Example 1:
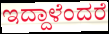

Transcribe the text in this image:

ಇದ್ದಾಳೆಂದರೆ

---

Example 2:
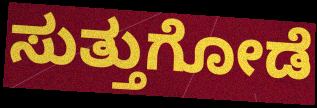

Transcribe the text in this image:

ಸುತ್ತುಗೋಡೆ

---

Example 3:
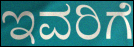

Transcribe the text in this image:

ಇವರಿಗೆ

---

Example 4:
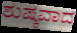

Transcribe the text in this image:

ಶುಷ್ಕವಾದ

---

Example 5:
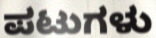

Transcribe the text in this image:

ಪಟುಗಳು